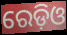
ରେଡ଼ିଓ